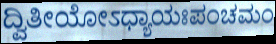
ದ್ವಿತೀಯೋಽಧ್ಯಾಯಃಪಂಚಮಂ